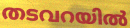
തടവറയിൽ